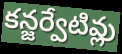
కన్జర్వేటివ్లు